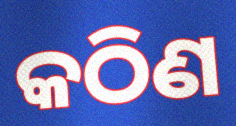
କଠିଣ